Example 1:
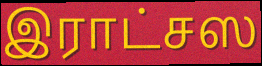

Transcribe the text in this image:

இராட்சஸ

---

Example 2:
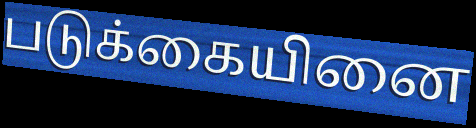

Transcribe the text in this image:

படுக்கையினை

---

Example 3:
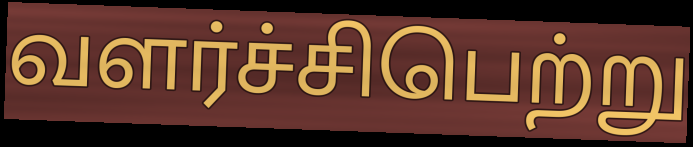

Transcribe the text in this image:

வளர்ச்சிபெற்று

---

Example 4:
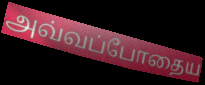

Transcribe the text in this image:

அவ்வப்போதைய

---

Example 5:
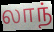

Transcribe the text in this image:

லாந்